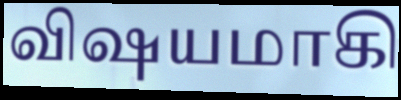
விஷயமாகி